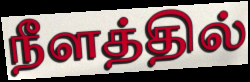
நீளத்தில்